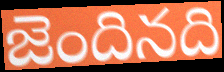
జెందినది